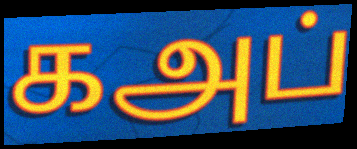
கஅப்